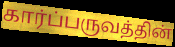
கார்ப்பருவத்தின்